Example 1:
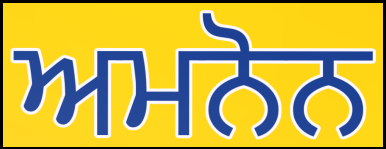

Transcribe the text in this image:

ਅਮਨੋਨ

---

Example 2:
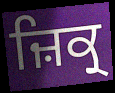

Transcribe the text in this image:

ਜ਼ਿਕ੍ਰ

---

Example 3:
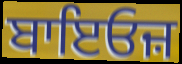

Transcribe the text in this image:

ਬਾਇਓਜ਼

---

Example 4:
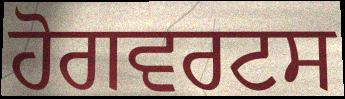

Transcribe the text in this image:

ਹੋਗਵਰਟਸ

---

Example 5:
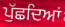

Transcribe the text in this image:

ਪੁੱਛਦਿਆਂ